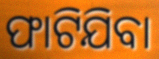
ଫାଟିଯିବା